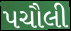
પચૌલી